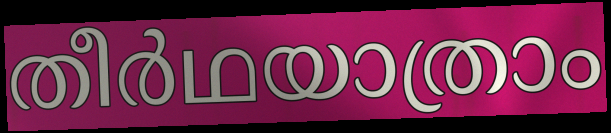
തീർഥയാത്രാം